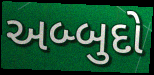
અબ્બુદો